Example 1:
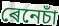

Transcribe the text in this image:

ৰেনেচাঁ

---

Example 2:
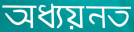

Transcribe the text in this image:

অধ্যয়নত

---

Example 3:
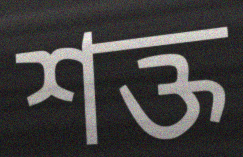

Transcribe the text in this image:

শক্ত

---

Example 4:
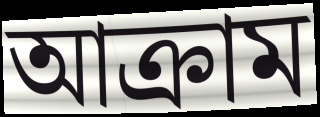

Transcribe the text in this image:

আক্ৰাম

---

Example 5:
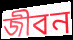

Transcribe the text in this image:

জীবন